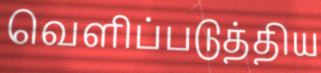
வெளிப்படுத்திய